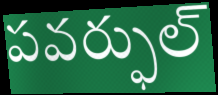
పవర్ఫుల్